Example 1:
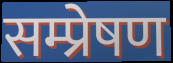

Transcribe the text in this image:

सम्प्रेषण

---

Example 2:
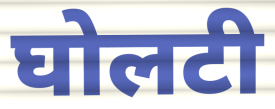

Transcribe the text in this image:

घोलटी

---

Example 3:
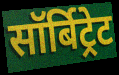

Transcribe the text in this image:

सॉर्बिट्रेट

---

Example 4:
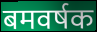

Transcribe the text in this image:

बमवर्षक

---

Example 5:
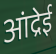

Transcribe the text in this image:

आंद्रेई